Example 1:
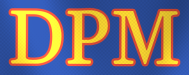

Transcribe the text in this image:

DPM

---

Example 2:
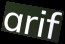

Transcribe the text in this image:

arif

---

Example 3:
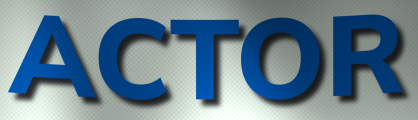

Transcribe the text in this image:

ACTOR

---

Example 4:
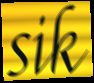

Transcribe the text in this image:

sik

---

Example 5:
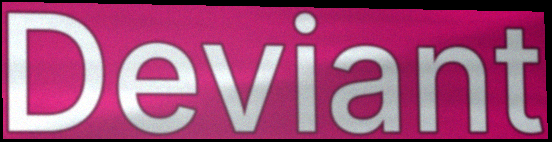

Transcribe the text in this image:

Deviant